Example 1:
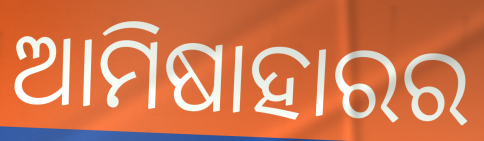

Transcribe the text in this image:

ଆମିଷାହାରର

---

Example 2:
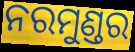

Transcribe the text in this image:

ନରମୁଣ୍ଡର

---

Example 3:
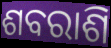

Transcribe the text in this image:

ଶବରାଶି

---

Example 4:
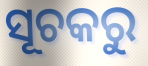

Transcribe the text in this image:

ସୂଚକରୁ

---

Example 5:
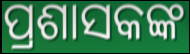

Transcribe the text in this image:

ପ୍ରଶାସକଙ୍କ